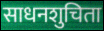
साधनशुचिता